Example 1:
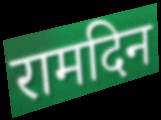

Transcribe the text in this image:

रामदिन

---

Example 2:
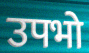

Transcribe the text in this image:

उपभो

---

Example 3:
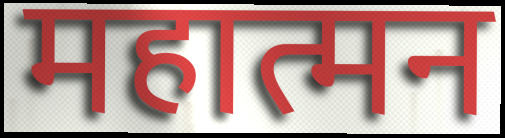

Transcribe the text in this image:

महात्मन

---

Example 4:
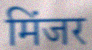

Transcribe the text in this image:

मिंजर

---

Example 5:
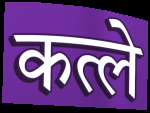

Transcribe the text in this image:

कत्ले